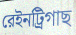
রেইনট্রিগাছ